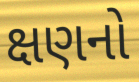
ક્ષણનો